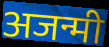
अजन्मी